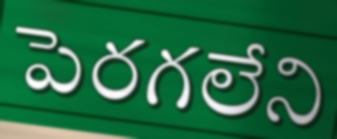
పెరగలేని